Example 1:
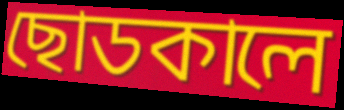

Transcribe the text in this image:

ছোডকালে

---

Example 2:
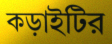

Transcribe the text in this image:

কড়াইটির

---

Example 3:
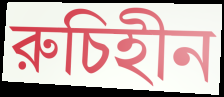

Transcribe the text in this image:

রুচিহীন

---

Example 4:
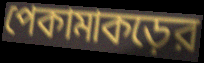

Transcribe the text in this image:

পেকামাকড়ের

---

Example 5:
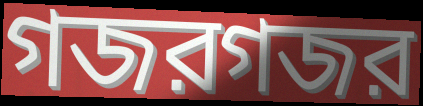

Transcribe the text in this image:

গজরগজর